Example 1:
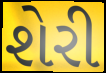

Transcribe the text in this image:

શેરી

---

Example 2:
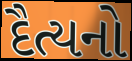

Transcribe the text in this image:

દૈત્યનો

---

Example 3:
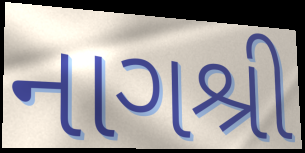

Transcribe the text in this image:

નાગશ્રી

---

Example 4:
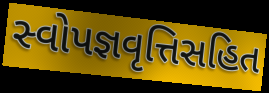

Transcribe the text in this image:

સ્વોપજ્ઞવૃત્તિસહિત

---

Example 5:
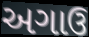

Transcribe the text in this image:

અગાઉ